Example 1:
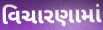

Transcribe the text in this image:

વિચારણામાં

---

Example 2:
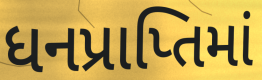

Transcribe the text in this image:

ધનપ્રાપ્તિમાં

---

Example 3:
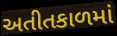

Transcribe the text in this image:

અતીતકાળમાં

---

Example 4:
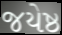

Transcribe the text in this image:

જયેષ્ઠ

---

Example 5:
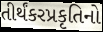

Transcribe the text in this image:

તીર્થંકરપ્રકૃતિનો